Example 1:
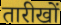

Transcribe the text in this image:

तारीखों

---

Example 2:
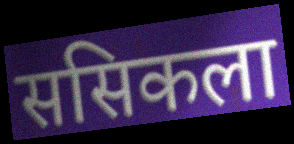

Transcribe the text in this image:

ससिकला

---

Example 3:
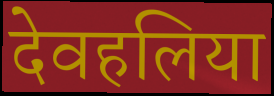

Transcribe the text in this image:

देवहलिया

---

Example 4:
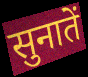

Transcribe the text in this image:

सुनातें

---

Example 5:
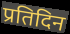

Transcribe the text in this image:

प्रतिदिन